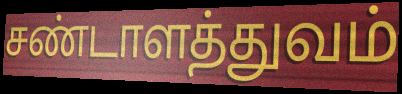
சண்டாளத்துவம்